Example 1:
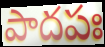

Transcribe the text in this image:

పాదపః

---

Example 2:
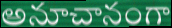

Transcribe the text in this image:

అనూచానంగా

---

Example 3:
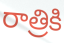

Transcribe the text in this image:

రాత్రికి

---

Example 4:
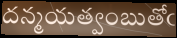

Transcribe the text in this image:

దన్మయత్వంబుతోఁ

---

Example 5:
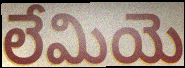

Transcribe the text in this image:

లేమియె